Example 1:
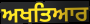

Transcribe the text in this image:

ਅਖਤਿਆਰ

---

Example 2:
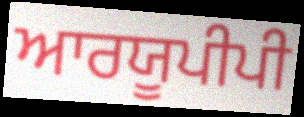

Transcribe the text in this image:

ਆਰਯੂਪੀਪੀ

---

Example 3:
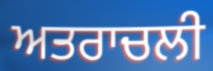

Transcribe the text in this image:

ਅਤਰਾਚਲੀ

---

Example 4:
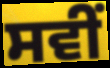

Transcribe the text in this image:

ਸਵੀਂ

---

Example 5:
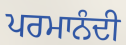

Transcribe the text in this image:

ਪਰਮਾਨੰਦੀ